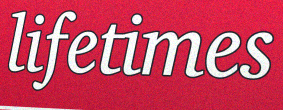
lifetimes